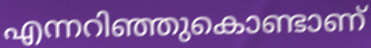
എന്നറിഞ്ഞുകൊണ്ടാണ്